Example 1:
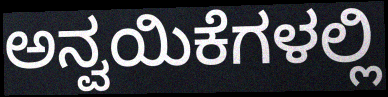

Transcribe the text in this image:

ಅನ್ವಯಿಕೆಗಳಲ್ಲಿ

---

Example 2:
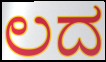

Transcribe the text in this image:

ಲದ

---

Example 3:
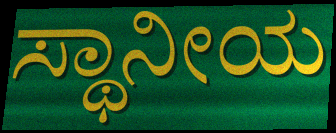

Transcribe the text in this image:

ಸ್ಥಾನೀಯ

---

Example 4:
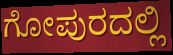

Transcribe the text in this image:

ಗೋಪುರದಲ್ಲಿ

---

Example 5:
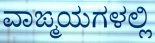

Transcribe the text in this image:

ವಾಙ್ಮಯಗಳಲ್ಲಿ